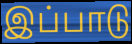
இப்பாடு